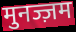
मुनज्ज़म